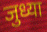
जुध्या